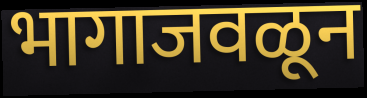
भागाजवळून